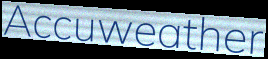
Accuweather